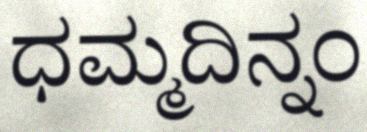
ಧಮ್ಮದಿನ್ನಂ